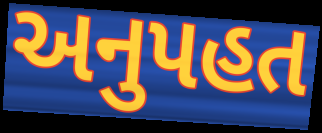
અનુપહત